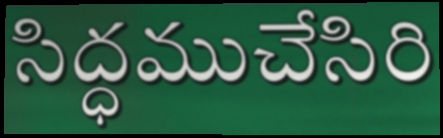
సిద్ధముచేసిరి